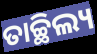
ତାଚ୍ଛିଲ୍ୟ